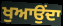
ਖੁਆਉਂਦਾ